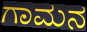
ಗಾಮನ